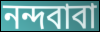
নন্দবাবা